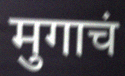
मुगाचं